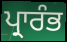
ਪ੍ਰਾਰੰਭ